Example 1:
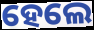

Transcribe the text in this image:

ହେଲେ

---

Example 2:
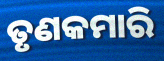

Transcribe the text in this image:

ତୃଣକମାରି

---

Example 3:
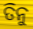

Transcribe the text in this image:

ତିନୁ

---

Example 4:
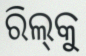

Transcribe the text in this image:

ରିଲ୍‌କୁ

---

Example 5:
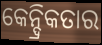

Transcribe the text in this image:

କେନ୍ଦ୍ରିକତାର